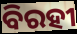
ବିରହୀ